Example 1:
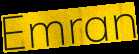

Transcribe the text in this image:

Emran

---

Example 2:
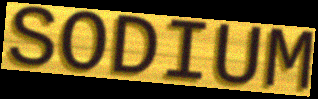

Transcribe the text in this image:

SODIUM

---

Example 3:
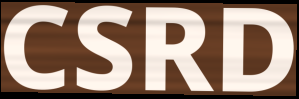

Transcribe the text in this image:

CSRD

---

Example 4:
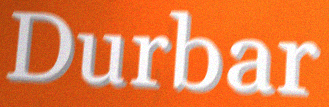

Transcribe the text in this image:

Durbar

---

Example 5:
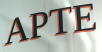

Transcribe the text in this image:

APTE